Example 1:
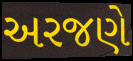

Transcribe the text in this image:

અરજણે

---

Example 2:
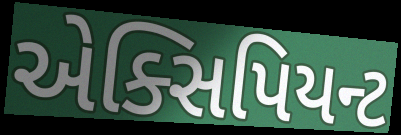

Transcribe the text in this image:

એક્સિપિયન્ટ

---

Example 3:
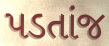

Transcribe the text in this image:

પડતાંજ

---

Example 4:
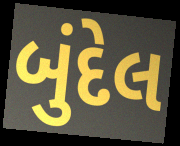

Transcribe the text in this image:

બુંદેલ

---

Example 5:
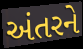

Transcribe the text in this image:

અંતરને